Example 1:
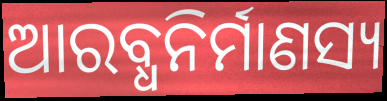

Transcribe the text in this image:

ଆରବ୍ଧନିର୍ମାଣସ୍ୟ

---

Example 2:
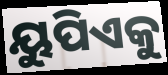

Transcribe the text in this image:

ୟୁପିଏକୁ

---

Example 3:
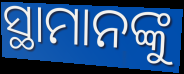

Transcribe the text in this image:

ସ୍ଥାମାନଙ୍କୁ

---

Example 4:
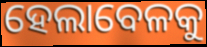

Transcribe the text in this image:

ହେଲାବେଳକୁ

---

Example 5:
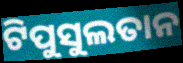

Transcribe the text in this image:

ଟିପୁସୁଲତାନ